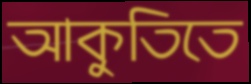
আকুতিতে